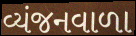
વ્યંજનવાળા